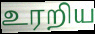
உரறிய